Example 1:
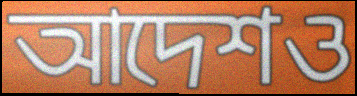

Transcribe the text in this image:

আদেশও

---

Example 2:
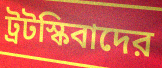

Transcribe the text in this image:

ট্রটস্কিবাদের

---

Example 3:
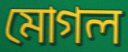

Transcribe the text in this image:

মোগল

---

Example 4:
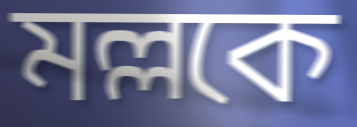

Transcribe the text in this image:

মল্লকে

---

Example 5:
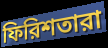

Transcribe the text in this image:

ফিরিশতারা